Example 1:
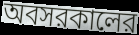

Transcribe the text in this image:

অবসরকালের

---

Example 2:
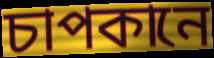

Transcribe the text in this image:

চাপকানে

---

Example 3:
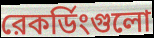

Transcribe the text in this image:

রেকর্ডিংগুলো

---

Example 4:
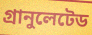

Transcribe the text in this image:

গ্রানুলেটেড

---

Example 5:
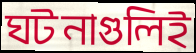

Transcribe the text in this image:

ঘটনাগুলিই